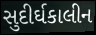
સુદીર્ઘકાલીન